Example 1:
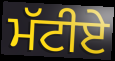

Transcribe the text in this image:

ਮੱਟੀਏ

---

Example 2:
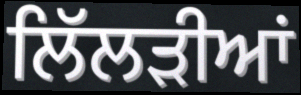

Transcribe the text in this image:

ਲਿੱਲੜੀਆਂ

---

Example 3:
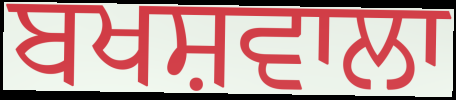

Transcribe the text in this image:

ਬਖਸ਼ਵਾਲਾ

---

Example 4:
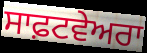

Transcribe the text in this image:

ਸਾਫ਼ਟਵੇਅਰਾ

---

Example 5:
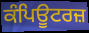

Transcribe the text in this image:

ਕੰਪਿਊਟਰਜ਼